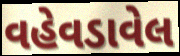
વહેવડાવેલ